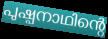
പുഷ്പനാഥിന്റെ